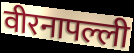
वीरनापल्ली